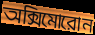
অক্সিমোরোন